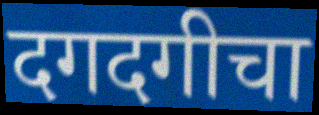
दगदगीचा